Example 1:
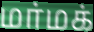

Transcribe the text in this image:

மர்மக்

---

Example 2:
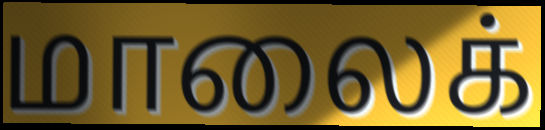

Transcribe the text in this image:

மாலைக்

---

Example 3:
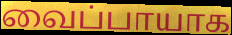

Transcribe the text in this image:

வைப்பாயாக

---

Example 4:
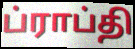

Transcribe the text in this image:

ப்ராப்தி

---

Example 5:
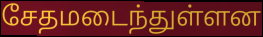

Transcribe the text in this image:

சேதமடைந்துள்ளன